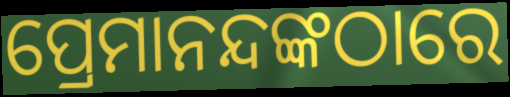
ପ୍ରେମାନନ୍ଦଙ୍କଠାରେ